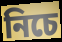
নিচে